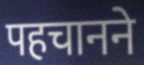
पहचानने